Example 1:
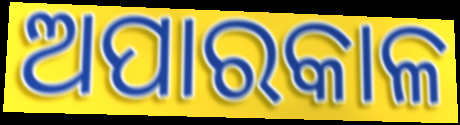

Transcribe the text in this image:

ଅପାରକାଳ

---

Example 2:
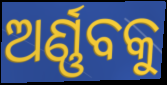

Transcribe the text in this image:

ଅର୍ଣ୍ଣବକୁ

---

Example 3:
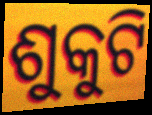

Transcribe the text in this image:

ଶୁକୁଟି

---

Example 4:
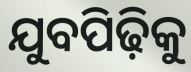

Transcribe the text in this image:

ଯୁବପିଢ଼ିକୁ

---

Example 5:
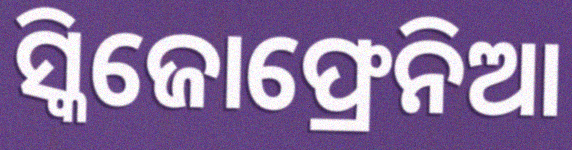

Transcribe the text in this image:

ସ୍କିଜୋଫ୍ରେନିଆ